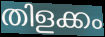
തിളക്കം